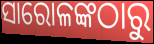
ସାରୋଳଙ୍କଠାରୁ